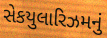
સેકયુલારિઝમનું